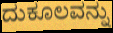
ದುಕೂಲವನ್ನು